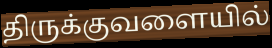
திருக்குவளையில்